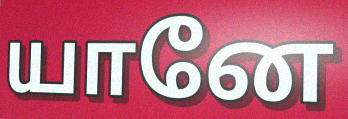
யானே